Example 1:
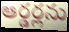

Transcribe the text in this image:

ఆర్డర్లను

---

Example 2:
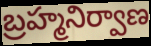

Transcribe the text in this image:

బ్రహ్మనిర్వాణ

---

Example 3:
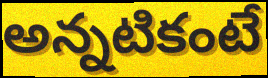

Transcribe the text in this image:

అన్నటికంటే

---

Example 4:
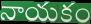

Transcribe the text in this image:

నాయకం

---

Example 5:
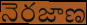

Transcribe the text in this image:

నెరజాణ